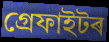
গ্ৰেফাইটৰ